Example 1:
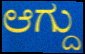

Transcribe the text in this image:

ಆಗ್ದು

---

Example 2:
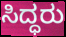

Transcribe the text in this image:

ಸಿದ್ಧರು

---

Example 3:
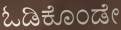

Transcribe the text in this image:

ಓಡಿಕೊಂಡೇ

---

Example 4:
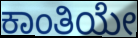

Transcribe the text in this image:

ಕಾಂತಿಯೇ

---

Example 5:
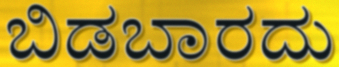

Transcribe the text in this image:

ಬಿಡಬಾರದು